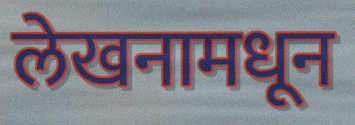
लेखनामधून